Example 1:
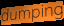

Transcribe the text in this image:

dumping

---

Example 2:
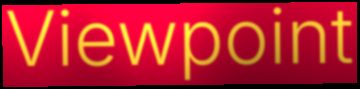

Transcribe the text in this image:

Viewpoint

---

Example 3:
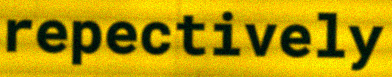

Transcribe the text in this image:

repectively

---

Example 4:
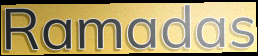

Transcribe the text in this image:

Ramadas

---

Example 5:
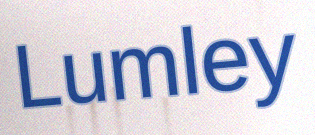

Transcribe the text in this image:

Lumley